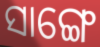
ସାଙ୍ଗେ